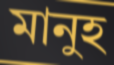
মানুহ